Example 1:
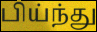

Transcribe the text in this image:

பிய்ந்து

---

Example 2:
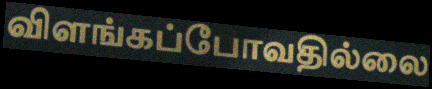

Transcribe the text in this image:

விளங்கப்போவதில்லை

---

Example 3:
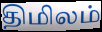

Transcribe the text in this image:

திமிலம்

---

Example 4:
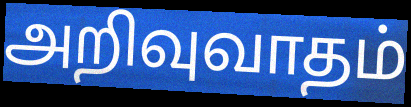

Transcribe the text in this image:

அறிவுவாதம்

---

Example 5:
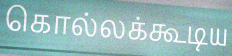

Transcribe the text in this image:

கொல்லக்கூடிய